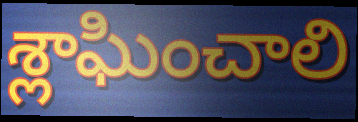
శ్లాఘించాలి